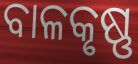
ବାଳକୃଷ୍ଣ